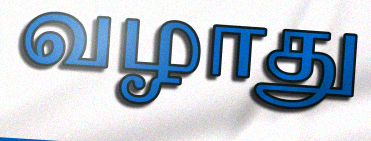
வழாது